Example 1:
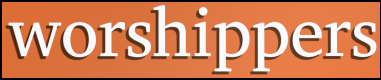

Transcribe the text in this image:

worshippers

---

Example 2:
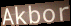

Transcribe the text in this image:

Akbor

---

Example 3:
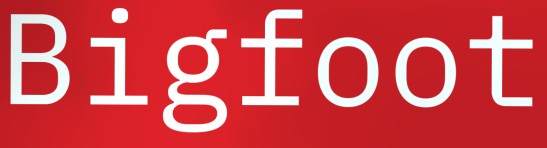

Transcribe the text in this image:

Bigfoot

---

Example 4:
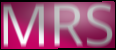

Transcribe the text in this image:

MRS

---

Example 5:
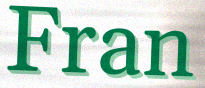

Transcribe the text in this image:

Fran